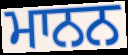
ਮਾਨਨ